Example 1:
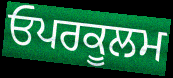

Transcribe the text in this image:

ਓਪਰਕੂਲਮ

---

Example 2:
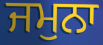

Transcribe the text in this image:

ਜਮੁਨਾ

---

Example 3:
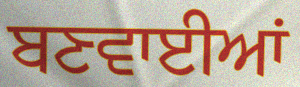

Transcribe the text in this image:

ਬਣਵਾਈਆਂ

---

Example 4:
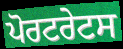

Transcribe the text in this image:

ਪੋਰਟਰੇਟਸ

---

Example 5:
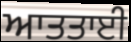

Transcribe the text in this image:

ਆਤਤਾਈ